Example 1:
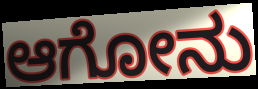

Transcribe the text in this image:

ಆಗೋನು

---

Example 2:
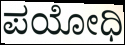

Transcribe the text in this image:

ಪಯೋಧಿ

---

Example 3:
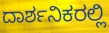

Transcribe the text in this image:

ದಾರ್ಶನಿಕರಲ್ಲಿ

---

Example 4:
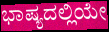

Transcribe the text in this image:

ಭಾಷ್ಯದಲ್ಲಿಯೇ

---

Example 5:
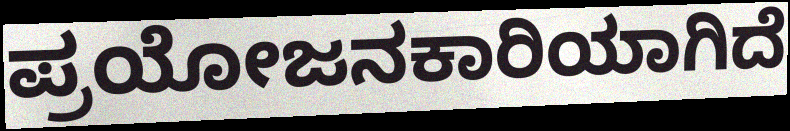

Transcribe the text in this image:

ಪ್ರಯೋಜನಕಾರಿಯಾಗಿದೆ